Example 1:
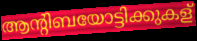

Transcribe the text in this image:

ആന്റിബയോട്ടിക്കുകള്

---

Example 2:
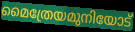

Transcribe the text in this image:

മൈത്രേയമുനിയോട്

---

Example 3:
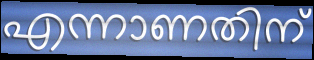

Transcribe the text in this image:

എന്നാണതിന്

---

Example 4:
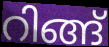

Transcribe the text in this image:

റിങ്ങ്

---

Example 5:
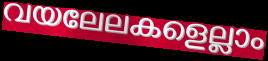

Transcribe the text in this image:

വയലേലകളെല്ലാം